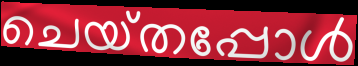
ചെയ്‌തപ്പോൾ